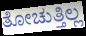
ತೋಚುತ್ತಿಲ್ಲ